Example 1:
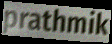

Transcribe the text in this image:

prathmik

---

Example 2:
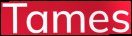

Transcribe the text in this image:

Tames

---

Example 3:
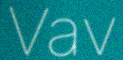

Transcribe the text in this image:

Vav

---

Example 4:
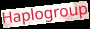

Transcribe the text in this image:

Haplogroup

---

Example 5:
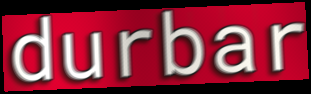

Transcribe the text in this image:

durbar